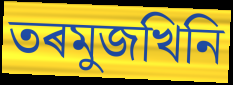
তৰমুজখিনি